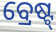
ବ୍ରେଷ୍ଟ୍